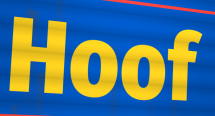
Hoof